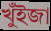
খুঁইজা